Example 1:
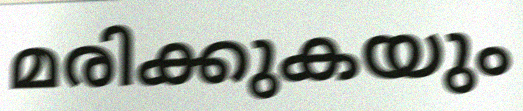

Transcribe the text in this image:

മരിക്കുകയും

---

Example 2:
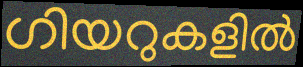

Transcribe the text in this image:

ഗിയറുകളിൽ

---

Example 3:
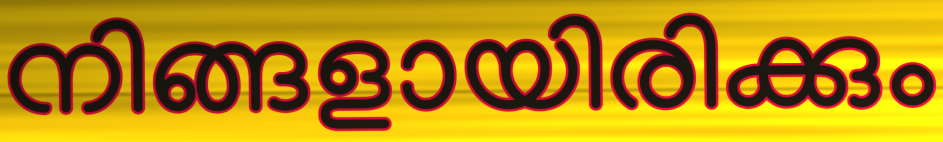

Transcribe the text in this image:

നിങ്ങളായിരിക്കും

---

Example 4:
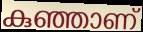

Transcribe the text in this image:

കുഞ്ഞാണ്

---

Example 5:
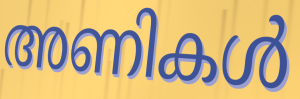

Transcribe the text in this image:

അണികൾ